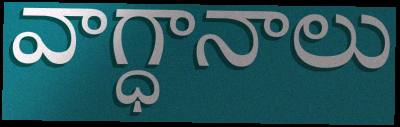
వాగ్ధానాలు